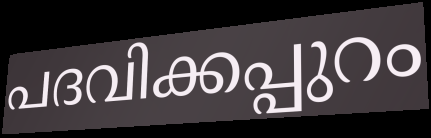
പദവിക്കപ്പുറം